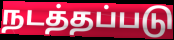
நடத்தப்படு